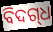
ବିଦଗ୍‍ଧ